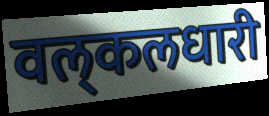
वल्कलधारी